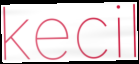
kecil